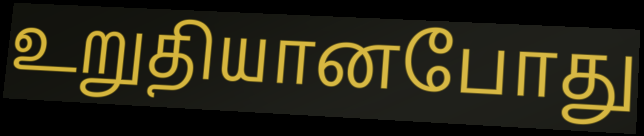
உறுதியானபோது